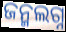
ଜନ୍ମଲଗ୍ନ